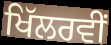
ਖਿੱਲਰਵੀਂ